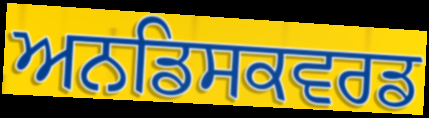
ਅਨਡਿਸਕਵਰਡ